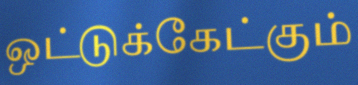
ஒட்டுக்கேட்கும்